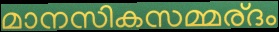
മാനസികസമ്മര്ദം